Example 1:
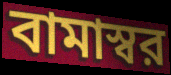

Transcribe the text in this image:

বামাস্বর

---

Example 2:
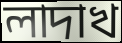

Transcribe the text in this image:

লাদাখ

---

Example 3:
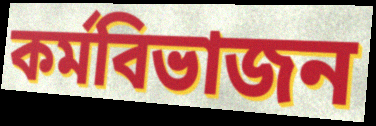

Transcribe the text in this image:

কর্মবিভাজন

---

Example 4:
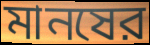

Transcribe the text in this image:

মানষের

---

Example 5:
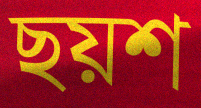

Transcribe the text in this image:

ছয়শ